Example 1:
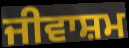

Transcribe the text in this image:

ਜੀਵਾਸ਼ਮ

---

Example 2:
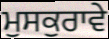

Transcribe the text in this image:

ਮੁਸਕੁਰਾਵੇ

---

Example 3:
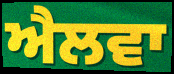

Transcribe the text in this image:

ਐਲਵਾ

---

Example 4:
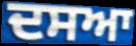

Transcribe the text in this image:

ਦਸਆ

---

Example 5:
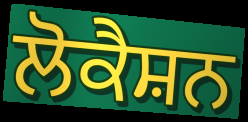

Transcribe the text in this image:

ਲੋਕੈਸ਼ਨ